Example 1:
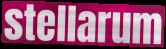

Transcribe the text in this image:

stellarum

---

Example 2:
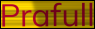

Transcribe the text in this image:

Prafull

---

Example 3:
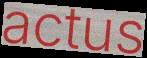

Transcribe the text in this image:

actus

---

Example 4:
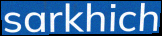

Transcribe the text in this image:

sarkhich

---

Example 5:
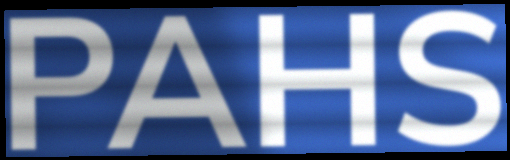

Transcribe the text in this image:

PAHS